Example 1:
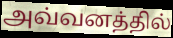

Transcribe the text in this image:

அவ்வனத்தில்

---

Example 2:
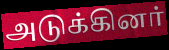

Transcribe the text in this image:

அடுக்கினர்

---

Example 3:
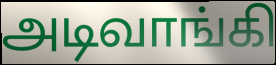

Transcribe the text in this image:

அடிவாங்கி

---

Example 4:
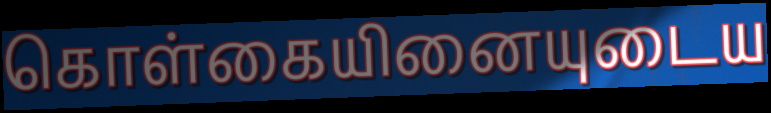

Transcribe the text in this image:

கொள்கையினையுடைய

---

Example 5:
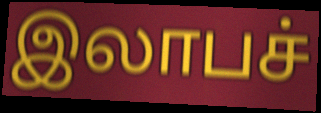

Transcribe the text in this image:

இலாபச்